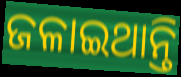
ଜଳାଇଥାନ୍ତି